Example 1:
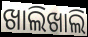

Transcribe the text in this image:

ଖାଲିଖାଲି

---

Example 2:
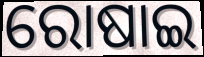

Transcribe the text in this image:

ରୋଷାଇ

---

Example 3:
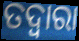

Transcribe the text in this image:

ତଦ୍ୱାରା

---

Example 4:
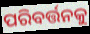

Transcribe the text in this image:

ପରିବର୍ତ୍ତନକୁ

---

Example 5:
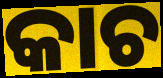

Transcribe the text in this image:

କାଚ